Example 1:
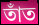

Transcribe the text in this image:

তাঁত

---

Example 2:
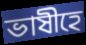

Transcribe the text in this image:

ভাষীহে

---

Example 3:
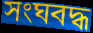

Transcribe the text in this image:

সংঘবদ্ধ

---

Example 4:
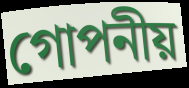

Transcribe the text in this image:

গোপনীয়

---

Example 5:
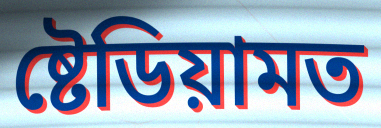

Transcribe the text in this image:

ষ্টেডিয়ামত